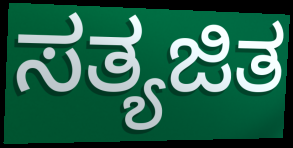
ಸತ್ಯಜಿತ